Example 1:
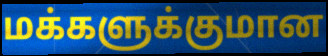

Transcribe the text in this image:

மக்களுக்குமான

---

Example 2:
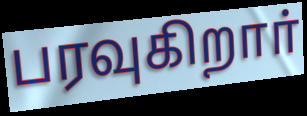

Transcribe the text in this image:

பரவுகிறார்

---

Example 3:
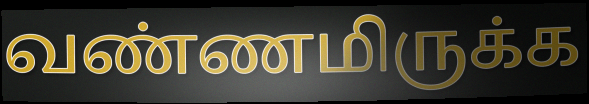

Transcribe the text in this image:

வண்ணமிருக்க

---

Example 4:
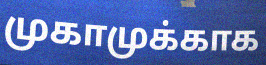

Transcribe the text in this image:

முகாமுக்காக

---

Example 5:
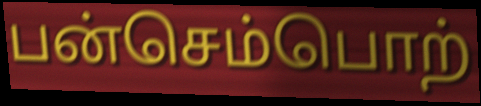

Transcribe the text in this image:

பன்செம்பொற்